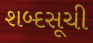
શબ્દસૂચી